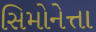
સિમોનેત્તા